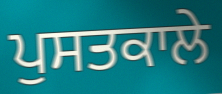
ਪੁਸਤਕਾਲੇ